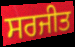
ਸਰਜੀਤ